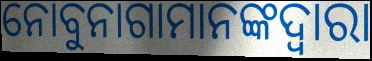
ନୋବୁନାଗାମାନଙ୍କଦ୍ୱାରା